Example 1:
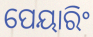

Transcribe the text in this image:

ପେୟାରିଂ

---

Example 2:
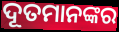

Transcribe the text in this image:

ଦୂତମାନଙ୍କର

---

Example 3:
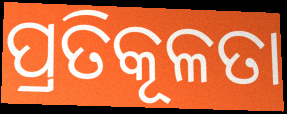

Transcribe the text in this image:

ପ୍ରତିକୂଳତା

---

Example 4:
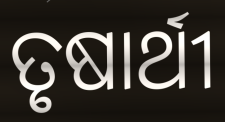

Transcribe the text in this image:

ତୃଷାର୍ଥୀ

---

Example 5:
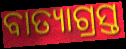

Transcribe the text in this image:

ବାତ୍ୟାଗ୍ରସ୍ତ